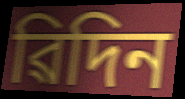
ৱিদিন